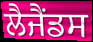
ਲੈਜੈਂਡਸ